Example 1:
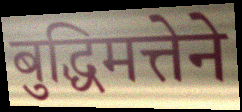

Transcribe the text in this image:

बुद्धिमत्तेने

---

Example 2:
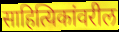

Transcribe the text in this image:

साहित्यिकांवरील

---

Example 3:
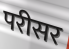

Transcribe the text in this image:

परीसर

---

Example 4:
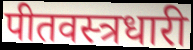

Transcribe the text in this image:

पीतवस्त्रधारी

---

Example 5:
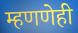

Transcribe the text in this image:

म्हणणेही